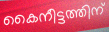
കൈനീട്ടത്തിന്